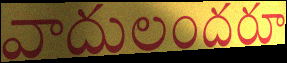
వాదులందరూ